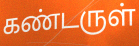
கண்டருள்